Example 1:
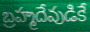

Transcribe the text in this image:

బ్రహ్మదేవుడికే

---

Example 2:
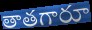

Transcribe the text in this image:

తాతగారూ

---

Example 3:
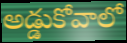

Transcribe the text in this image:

అడ్డుకోవాలో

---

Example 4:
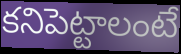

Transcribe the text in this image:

కనిపెట్టాలంటే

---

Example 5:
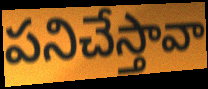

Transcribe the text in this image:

పనిచేస్తావా